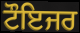
ਟੌਇਜਰ